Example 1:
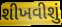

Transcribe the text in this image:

શીખવીશું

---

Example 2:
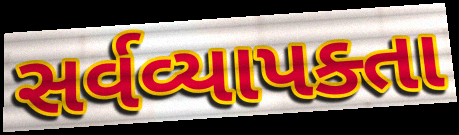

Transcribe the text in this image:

સર્વવ્યાપક્તા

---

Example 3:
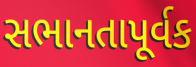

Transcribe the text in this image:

સભાનતાપૂર્વક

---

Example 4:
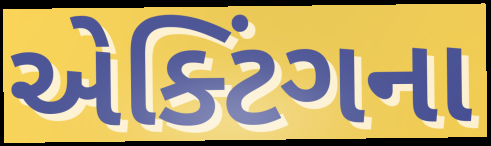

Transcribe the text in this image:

એક્ટિંગના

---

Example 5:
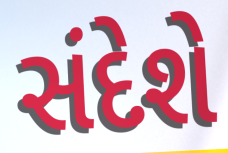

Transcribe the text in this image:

સંદેશે